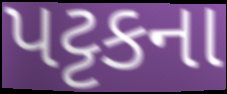
પટ્ટકના